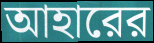
আহারের